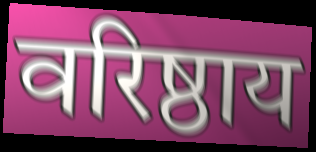
वरिष्ठाय